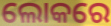
ଲୋକରେ